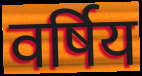
वर्षिय